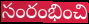
సంరంభించి